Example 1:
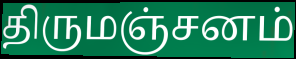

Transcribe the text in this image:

திருமஞ்சனம்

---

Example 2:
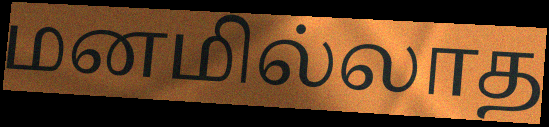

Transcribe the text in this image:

மனமில்லாத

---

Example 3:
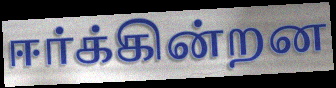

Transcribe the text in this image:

ஈர்க்கின்றன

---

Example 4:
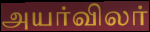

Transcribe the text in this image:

அயர்விலர்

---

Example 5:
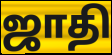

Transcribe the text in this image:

ஜாதி